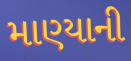
માણ્યાની